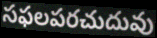
సఫలపరచుదువు